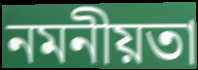
নমনীয়তা